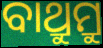
ବାଥ୍ରୁମ୍ରୁ